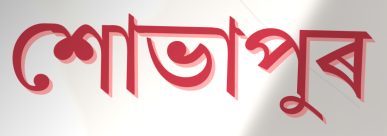
শোভাপুৰ